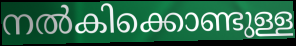
നൽകിക്കൊണ്ടുള്ള